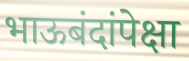
भाऊबंदांपेक्षा